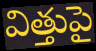
విత్తుపై